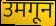
उमगून